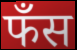
फँस